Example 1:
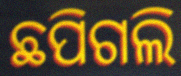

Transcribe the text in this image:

ଛପିଗଲି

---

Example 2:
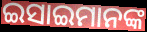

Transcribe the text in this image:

ଇସାଇମାନଙ୍କ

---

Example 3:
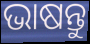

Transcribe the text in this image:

ଭାଷନ୍ତୁ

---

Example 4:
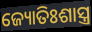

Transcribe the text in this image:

ଜ୍ୟୋତିଃଶାସ୍ତ୍ର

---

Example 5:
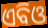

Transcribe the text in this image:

ଏବିଓ